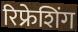
रिफ्रेशिंग